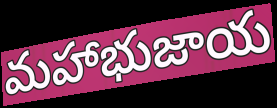
మహాభుజాయ